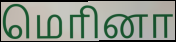
மெரினா